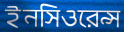
ইনসিওরেন্স